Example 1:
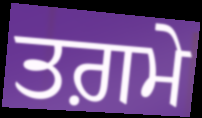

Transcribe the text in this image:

ਤਗ਼ਮੇ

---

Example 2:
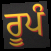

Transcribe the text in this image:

ਰੂਪੰ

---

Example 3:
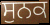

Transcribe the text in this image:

ਸੁਨਕ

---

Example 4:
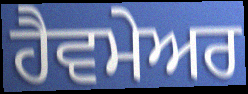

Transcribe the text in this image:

ਹੈਵਮੇਅਰ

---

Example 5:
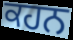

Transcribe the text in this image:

ਕਹਨ